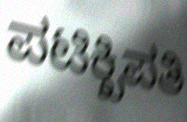
ಪಟಿಕ್ಖಿಪತಿ